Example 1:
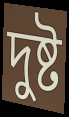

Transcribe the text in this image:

দুষ্ট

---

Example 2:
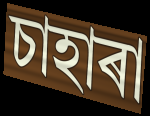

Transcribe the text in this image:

চাহাৰা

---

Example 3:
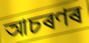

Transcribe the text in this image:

আচৰণৰ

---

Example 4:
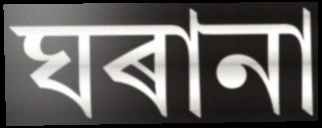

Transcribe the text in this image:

ঘৰানা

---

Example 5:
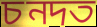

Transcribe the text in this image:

চনদত